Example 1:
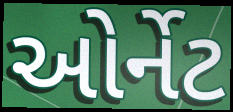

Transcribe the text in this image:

ઓર્નેટ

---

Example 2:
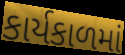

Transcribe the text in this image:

કાર્યકાળમાં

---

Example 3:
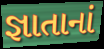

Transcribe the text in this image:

જ્ઞાતાનાં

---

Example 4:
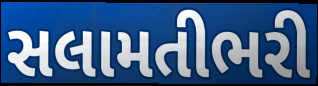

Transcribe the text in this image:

સલામતીભરી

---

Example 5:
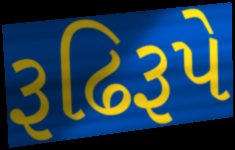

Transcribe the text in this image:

રૂઢિરૂપે